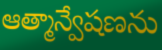
ఆత్మాన్వేషణను